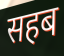
सहब